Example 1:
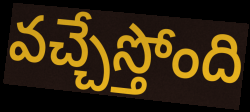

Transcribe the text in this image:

వచ్చేస్తోంది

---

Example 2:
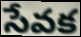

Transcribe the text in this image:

సేవక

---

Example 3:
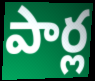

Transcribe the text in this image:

పార్ల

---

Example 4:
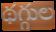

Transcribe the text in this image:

థగ్గుల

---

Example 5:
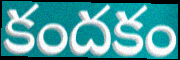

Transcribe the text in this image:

కందకం